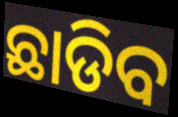
ଛାଡିବ